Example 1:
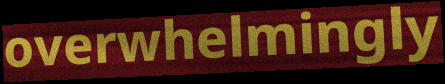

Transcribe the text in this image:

overwhelmingly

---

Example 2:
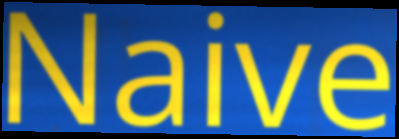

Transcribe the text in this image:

Naive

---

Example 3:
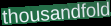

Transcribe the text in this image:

thousandfold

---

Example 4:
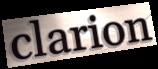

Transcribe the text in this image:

clarion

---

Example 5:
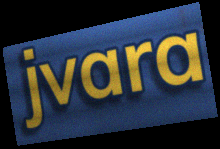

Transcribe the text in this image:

jvara